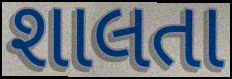
શાલતા